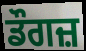
ਡੌਗਜ਼